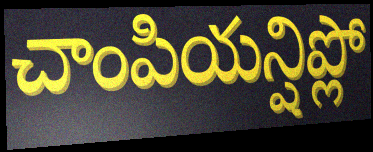
చాంపియన్షిప్లో